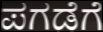
ಪಗಡೆಗೆ